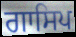
ਗਾਸਿਪ